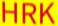
HRK